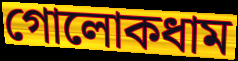
গোলোকধাম